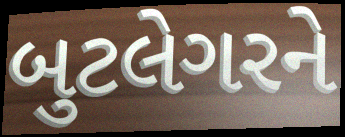
બુટલેગરને